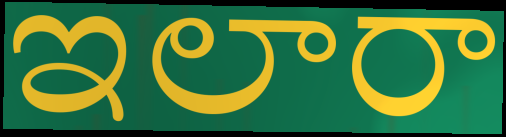
ఇలారా